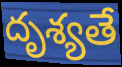
దృశ్యతే